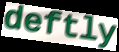
deftly